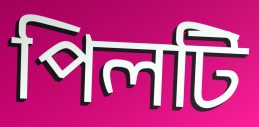
পিলটি